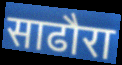
साढौरा